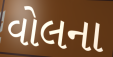
વોલના